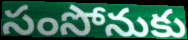
సంసోనుకు